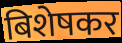
बिशेषकर